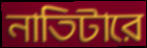
নাতিটারে